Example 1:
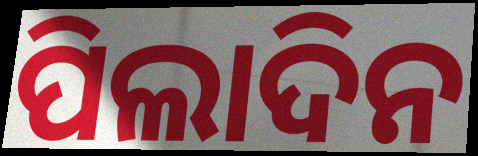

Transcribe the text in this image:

ପିଲାଦିନ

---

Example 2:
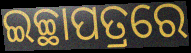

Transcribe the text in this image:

ଇଚ୍ଛାପତ୍ରରେ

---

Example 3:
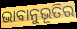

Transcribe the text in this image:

ଭାବାନୁଭୂତିର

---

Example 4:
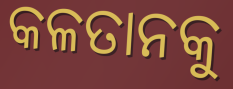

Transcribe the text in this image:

କଳତାନକୁ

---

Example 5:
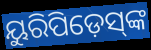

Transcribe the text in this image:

ୟୁରିପିଡ଼େସ୍‌ଙ୍କ